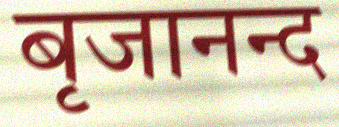
बृजानन्द